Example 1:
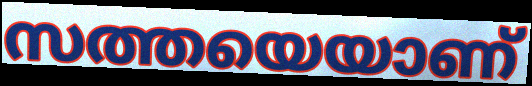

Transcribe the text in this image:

സത്തയെയാണ്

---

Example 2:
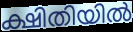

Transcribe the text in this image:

ക്ഷിതിയിൽ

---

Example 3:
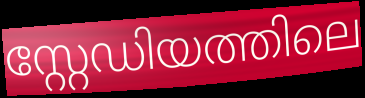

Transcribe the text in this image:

സ്റ്റേഡിയത്തിലെ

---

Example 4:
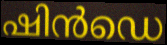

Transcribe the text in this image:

ഷിൻഡെ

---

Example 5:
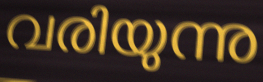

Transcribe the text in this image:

വരിയുന്നു